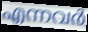
എന്നവർ